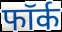
फॉर्क